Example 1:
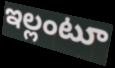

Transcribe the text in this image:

ఇల్లంటూ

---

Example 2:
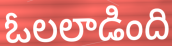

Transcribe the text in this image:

ఓలలాడింది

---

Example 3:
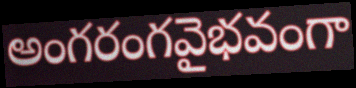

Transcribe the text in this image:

అంగరంగవైభవంగా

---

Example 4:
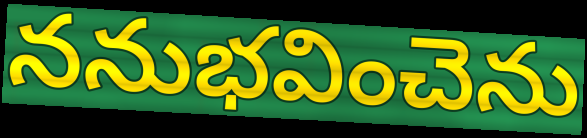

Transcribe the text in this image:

ననుభవించెను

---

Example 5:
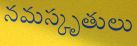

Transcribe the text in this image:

నమస్కృతులు